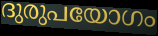
ദുരുപയോഗം